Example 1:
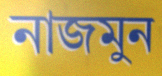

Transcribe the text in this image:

নাজমুন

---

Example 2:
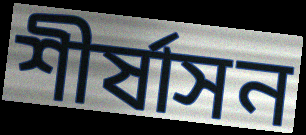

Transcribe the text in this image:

শীর্ষাসন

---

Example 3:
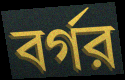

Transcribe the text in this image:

বর্গর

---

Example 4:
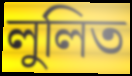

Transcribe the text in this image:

লুলিত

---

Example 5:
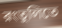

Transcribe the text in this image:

রংতুলিতে